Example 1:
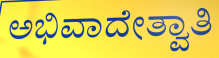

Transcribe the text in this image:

ಅಭಿವಾದೇತ್ವಾತಿ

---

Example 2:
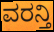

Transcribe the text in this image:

ವರನ್ತಿ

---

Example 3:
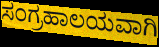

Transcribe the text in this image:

ಸಂಗ್ರಹಾಲಯವಾಗಿ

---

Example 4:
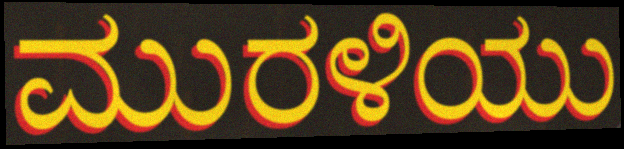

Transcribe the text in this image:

ಮುರಳಿಯು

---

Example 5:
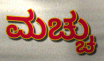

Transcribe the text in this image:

ಮಚ್ಚು